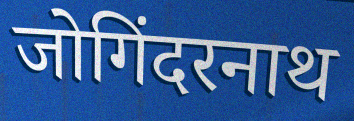
जोगिंदरनाथ